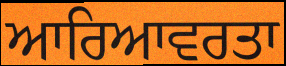
ਆਰਿਆਵਰਤਾ